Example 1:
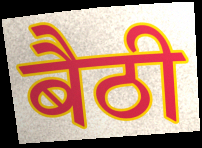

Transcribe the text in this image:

बैठी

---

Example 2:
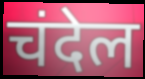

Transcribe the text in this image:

चंदेल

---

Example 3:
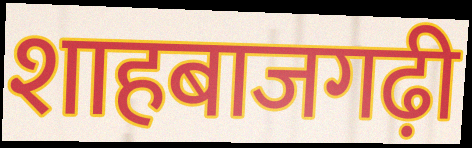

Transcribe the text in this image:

शाहबाजगढ़ी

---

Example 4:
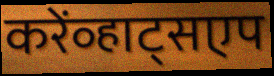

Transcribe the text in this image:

करेंव्हाट्सएप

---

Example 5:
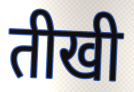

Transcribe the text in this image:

तीखी